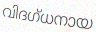
വിദഗ്ധനായ